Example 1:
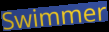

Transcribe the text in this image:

Swimmer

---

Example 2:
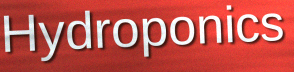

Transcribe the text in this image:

Hydroponics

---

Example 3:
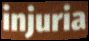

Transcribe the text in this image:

injuria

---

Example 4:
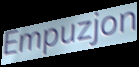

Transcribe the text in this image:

Empuzjon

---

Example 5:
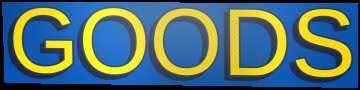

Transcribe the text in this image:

GOODS